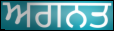
ਅਗਨਤ